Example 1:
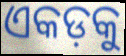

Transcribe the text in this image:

ଏକଡ଼କୁ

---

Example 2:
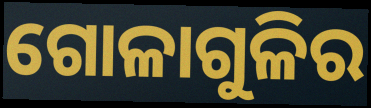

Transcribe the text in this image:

ଗୋଳାଗୁଳିର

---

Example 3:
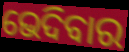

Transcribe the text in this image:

ଭେଦିବାର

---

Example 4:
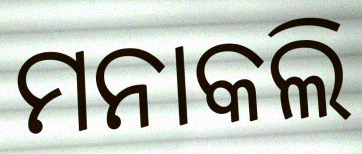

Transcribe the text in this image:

ମନାକଲି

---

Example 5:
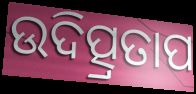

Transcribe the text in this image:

ଉଦିତ୍ପ୍ରତାପ